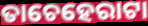
ତାଚେହେରାଟା